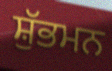
ਸ਼ੁੱਭਮਨ